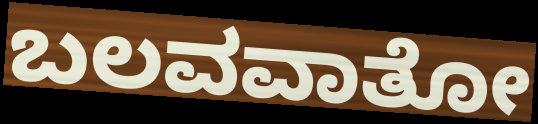
ಬಲವವಾತೋ